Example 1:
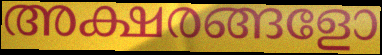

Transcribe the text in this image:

അക്ഷരങ്ങളോ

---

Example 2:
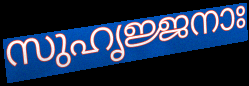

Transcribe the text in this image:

സുഹൃജ്ജനാഃ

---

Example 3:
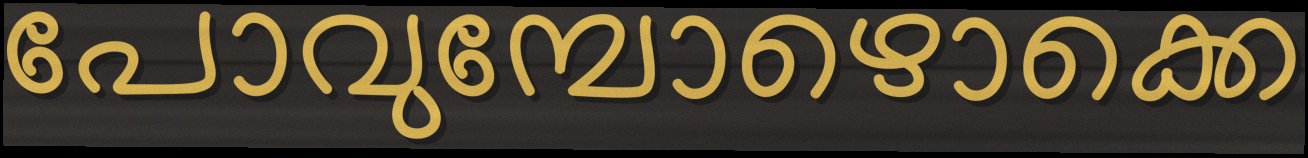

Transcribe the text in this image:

പോവുമ്പോഴൊക്കെ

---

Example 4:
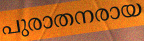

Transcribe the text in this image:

പുരാതനരായ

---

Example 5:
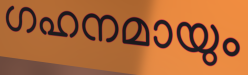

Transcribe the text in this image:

ഗഹനമായും